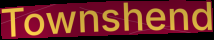
Townshend